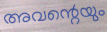
അവന്റെയും